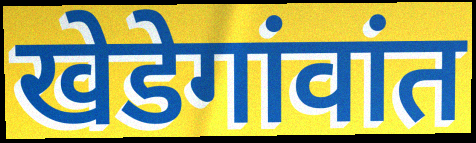
खेडेगांवांत